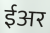
ईअर